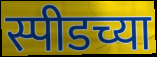
स्पीडच्या